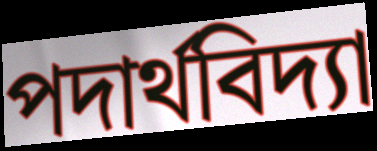
পদাৰ্থবিদ্যা